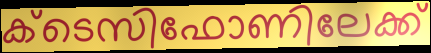
ക്ടെസിഫോണിലേക്ക്